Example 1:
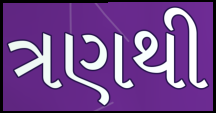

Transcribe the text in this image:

ત્રણથી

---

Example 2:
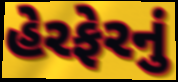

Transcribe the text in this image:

હેરફેરનું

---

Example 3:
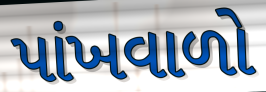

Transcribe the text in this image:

પાંખવાળો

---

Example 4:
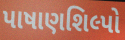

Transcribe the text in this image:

પાષાણશિલ્પો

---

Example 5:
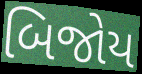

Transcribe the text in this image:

બિજોય